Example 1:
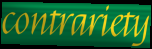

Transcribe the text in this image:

contrariety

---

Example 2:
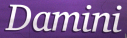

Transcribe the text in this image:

Damini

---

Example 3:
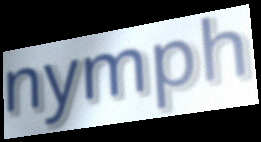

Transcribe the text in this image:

nymph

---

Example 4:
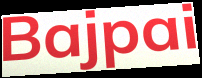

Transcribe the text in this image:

Bajpai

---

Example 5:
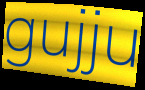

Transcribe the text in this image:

gujju